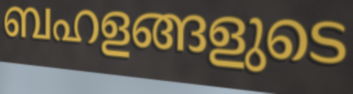
ബഹളങ്ങളുടെ